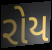
રોય